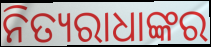
ନିତ୍ୟରାଧାଙ୍କର